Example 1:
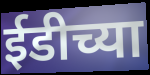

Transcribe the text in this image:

ईडीच्या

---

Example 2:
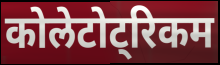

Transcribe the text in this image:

कोलेटोट्रिकम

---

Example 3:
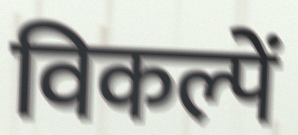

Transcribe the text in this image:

विकल्पें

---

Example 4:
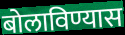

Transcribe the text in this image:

बोलाविण्यास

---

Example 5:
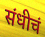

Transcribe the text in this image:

संधीचं